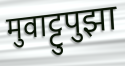
मुवाट्टुपुझा